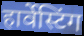
हार्वेस्टिंग